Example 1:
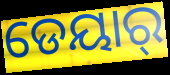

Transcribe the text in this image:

ଡେୟାର୍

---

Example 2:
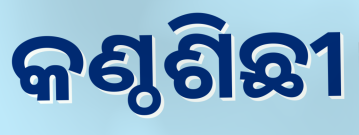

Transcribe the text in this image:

କଣ୍ଠଶିଛୀ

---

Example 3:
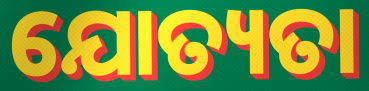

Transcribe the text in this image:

ଯୋତ୍ୟତା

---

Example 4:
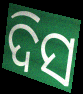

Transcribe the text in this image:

ଦିସ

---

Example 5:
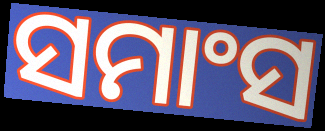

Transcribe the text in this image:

ସମାଂସ